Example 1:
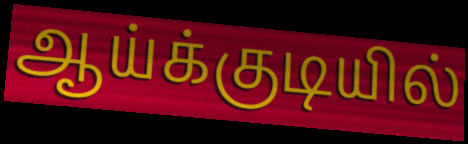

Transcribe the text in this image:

ஆய்க்குடியில்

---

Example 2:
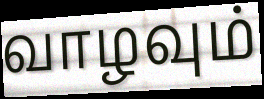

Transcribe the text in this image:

வாழவும்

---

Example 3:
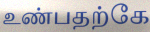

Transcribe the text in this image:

உண்பதற்கே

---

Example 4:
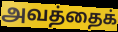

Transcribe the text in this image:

அவத்தைக்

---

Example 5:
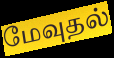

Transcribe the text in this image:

மேவுதல்